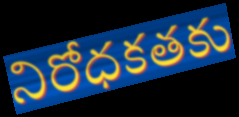
నిరోధకతకు